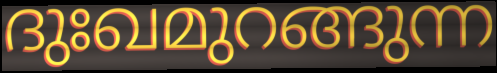
ദുഃഖമുറങ്ങുന്ന